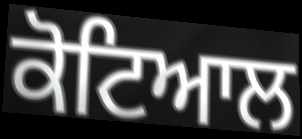
ਕੋਟਿਆਲ